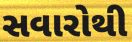
સવારોથી